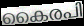
കൈരപി